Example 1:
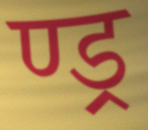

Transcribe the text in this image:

ण्ड्र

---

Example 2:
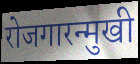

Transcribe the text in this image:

रोजगारन्मुखी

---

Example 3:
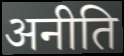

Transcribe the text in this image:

अनीति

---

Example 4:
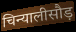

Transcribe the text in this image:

चिन्यालीसौड़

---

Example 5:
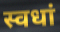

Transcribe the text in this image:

स्वधां